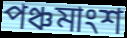
পঞ্চমাংশ